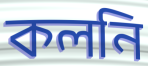
কলনি